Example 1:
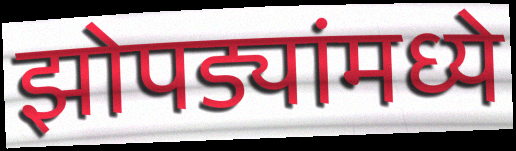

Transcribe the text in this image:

झोपड्यांमध्ये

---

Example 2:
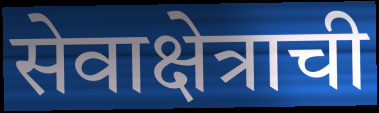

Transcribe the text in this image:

सेवाक्षेत्राची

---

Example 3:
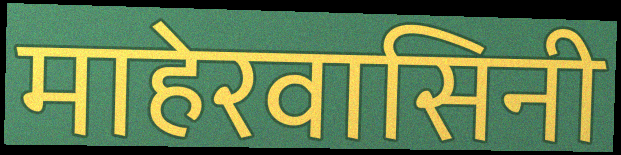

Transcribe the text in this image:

माहेरवासिनी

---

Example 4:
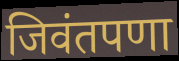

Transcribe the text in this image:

जिवंतपणा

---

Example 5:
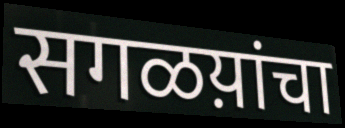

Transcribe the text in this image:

सगळय़ांचा